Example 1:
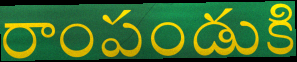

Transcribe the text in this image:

రాంపండుకి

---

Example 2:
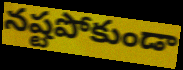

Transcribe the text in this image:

నష్టపోకుండా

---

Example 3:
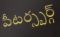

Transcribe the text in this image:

పీటర్స్బర్గ్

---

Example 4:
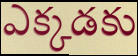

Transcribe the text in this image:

ఎక్కడకు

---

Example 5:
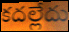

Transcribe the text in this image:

కదల్లేదు